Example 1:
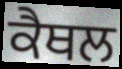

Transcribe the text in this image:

ਕੈਥਲ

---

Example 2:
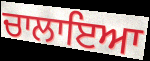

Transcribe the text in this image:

ਚਾਲਾਇਆ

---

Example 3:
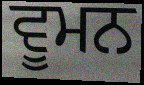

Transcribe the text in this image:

ਵੂਮਨ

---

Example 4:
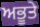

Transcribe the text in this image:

ਅਭੂਤੇ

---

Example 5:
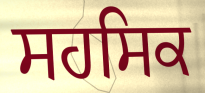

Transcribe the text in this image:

ਸਹਸਿਕ